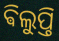
ଵିଲୁପ୍ତି